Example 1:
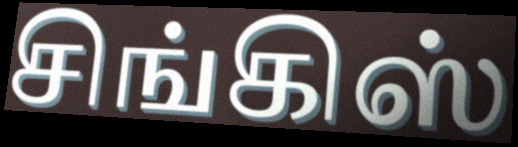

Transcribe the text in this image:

சிங்கிஸ்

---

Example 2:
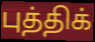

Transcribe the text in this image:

புத்திக்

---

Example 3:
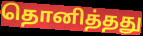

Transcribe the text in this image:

தொனித்தது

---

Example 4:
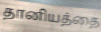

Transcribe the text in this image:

தானியத்தை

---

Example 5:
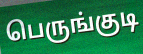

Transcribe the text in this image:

பெருங்குடி